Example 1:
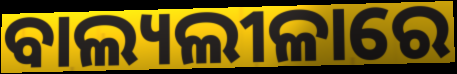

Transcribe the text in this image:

ବାଲ୍ୟଲୀଳାରେ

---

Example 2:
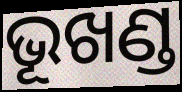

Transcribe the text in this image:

ଭୂଖଣ୍ଡ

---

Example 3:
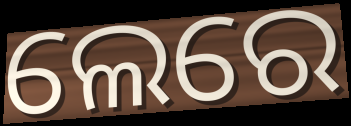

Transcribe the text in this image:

ଲେରେ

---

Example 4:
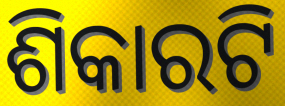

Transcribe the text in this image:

ଶିକାରଟି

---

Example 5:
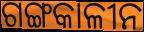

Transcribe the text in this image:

ଗଙ୍ଗକାଳୀନ